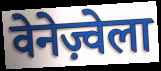
वेनेज़्वेला